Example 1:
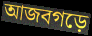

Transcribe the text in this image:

আজবগড়ে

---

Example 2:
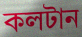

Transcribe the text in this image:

কলটান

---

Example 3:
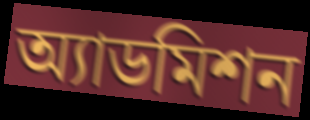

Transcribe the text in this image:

অ্যাডমিশন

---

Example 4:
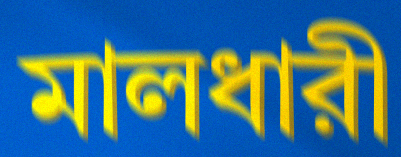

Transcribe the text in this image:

মালধারী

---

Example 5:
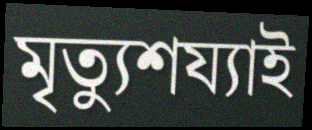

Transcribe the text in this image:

মৃত্যুশয্যাই